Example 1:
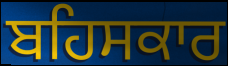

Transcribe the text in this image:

ਬਹਿਸਕਾਰ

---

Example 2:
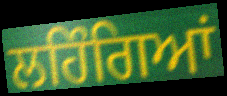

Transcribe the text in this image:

ਲਹਿੰਗਿਆਂ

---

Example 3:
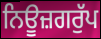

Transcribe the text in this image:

ਨਿਊਜ਼ਗਰੁੱਪ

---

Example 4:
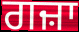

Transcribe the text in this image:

ਗਜ਼ਾ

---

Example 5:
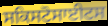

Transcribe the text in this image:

ਸਕਿਸਟੋਸਾਈਟਸ